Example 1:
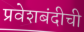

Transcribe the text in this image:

प्रवेशबंदीची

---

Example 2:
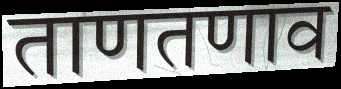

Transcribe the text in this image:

ताणतणाव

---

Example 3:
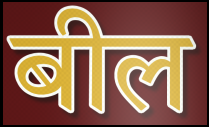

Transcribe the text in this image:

बील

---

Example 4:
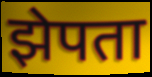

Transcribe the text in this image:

झेपता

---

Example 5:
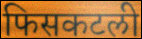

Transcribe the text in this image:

फिसकटली